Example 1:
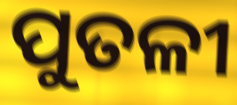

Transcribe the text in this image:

ପୁତଳୀ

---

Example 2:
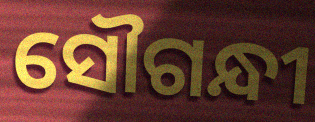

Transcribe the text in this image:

ସୌଗନ୍ଧୀ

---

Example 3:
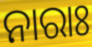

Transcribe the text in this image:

ନାରାଃ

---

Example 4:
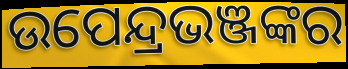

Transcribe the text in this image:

ଉପେନ୍ଦ୍ରଭଞ୍ଜଙ୍କର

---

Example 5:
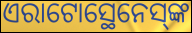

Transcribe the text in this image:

ଏରାଟୋସ୍ଥେନେସ୍‌ଙ୍କ